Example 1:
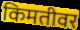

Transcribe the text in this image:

किमतीवर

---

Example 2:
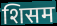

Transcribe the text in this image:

शिसम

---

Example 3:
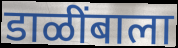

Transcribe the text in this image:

डाळींबाला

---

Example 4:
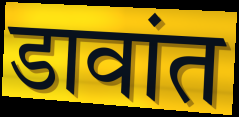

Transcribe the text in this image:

डावांत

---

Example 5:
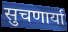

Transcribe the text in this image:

सुचणार्या